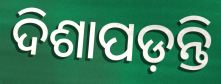
ଦିଶାପଡ଼ନ୍ତି